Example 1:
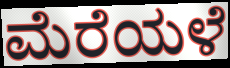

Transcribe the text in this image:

ಮೆರೆಯಳೆ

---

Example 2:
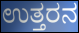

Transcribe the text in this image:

ಉತ್ತರನ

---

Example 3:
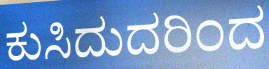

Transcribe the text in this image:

ಕುಸಿದುದರಿಂದ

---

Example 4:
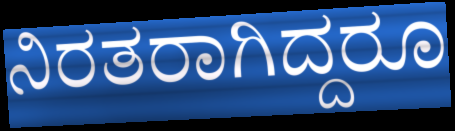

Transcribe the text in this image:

ನಿರತರಾಗಿದ್ದರೂ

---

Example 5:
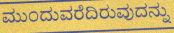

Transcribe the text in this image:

ಮುಂದುವರೆದಿರುವುದನ್ನು